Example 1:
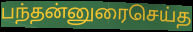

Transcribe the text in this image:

பந்தன்னுரைசெய்த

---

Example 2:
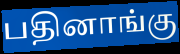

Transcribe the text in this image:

பதினாங்கு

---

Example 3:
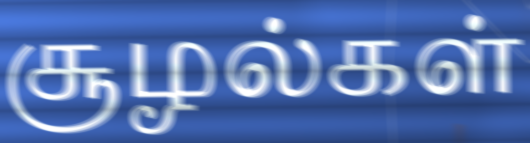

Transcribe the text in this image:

சூழல்கள்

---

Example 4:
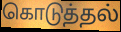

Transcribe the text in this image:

கொடுத்தல்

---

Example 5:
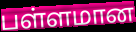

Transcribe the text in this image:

பள்ளமான